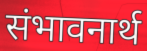
संभावनार्थ